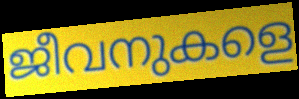
ജീവനുകളെ